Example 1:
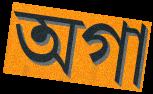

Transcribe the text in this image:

অগা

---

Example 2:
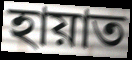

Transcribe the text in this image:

হায়াত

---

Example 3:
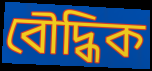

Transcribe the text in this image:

বৌদ্ধিক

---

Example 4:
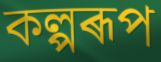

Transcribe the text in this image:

কল্পৰূপ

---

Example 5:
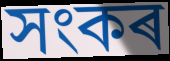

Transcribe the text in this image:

সংকৰ